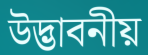
উদ্ভাবনীয়